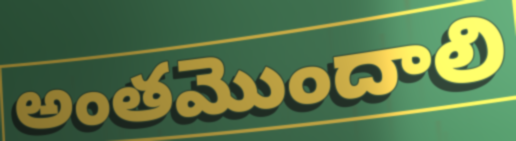
అంతమొందాలి